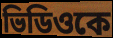
ভিডিওকে